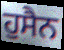
ਹੁਸੈਨ